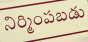
నిర్మింపబడు